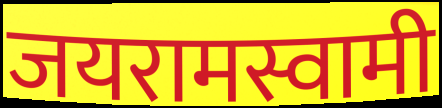
जयरामस्वामी